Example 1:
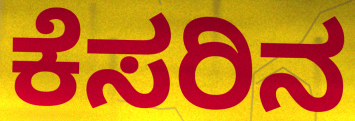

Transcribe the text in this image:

ಕೆಸರಿನ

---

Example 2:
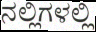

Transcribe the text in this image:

ನಲ್ಲಿಗಳಲ್ಲಿ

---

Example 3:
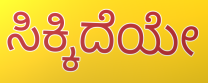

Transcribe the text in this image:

ಸಿಕ್ಕಿದೆಯೇ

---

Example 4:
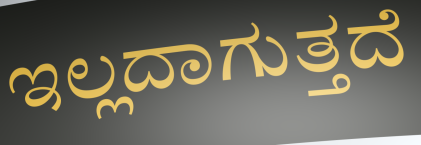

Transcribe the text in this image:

ಇಲ್ಲದಾಗುತ್ತದೆ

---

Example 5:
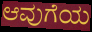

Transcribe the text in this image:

ಆವುಗೆಯ